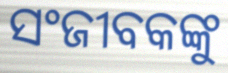
ସଂଜୀବକଙ୍କୁ